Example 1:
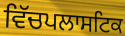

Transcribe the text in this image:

ਵਿੱਚਪਲਾਸਟਿਕ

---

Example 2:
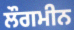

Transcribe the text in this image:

ਲੌਗਮੀਨ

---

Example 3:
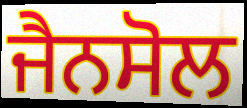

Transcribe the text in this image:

ਜੈਨਸੋਲ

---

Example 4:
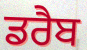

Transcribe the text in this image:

ਡਰੈਬ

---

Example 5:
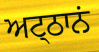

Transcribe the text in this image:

ਅਟ੍ਠਾਨਂ